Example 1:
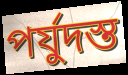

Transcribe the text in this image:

পর্যুদস্ত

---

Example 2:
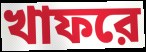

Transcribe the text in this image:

খাফরে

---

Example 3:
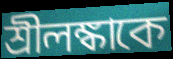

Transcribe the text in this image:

শ্রীলঙ্কাকে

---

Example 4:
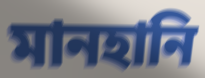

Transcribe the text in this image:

মানহানি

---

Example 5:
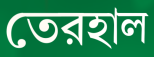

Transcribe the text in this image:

তেরহাল